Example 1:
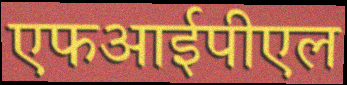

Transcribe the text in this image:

एफआईपीएल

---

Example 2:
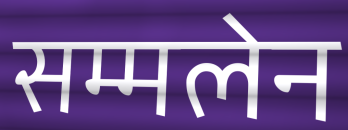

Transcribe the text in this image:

सम्मलेन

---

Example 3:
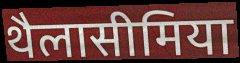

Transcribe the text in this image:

थैलासीमिया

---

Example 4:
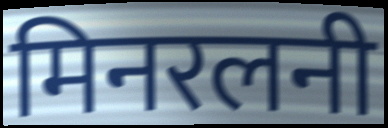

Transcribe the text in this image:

मिनरलनी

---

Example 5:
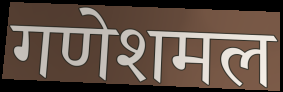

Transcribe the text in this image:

गणेशमल